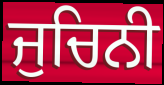
ਜੁਚਿਨੀ